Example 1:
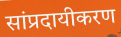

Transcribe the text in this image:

सांप्रदायीकरण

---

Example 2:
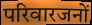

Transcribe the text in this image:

परिवारजनों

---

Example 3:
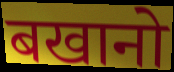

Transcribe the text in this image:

बखानो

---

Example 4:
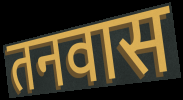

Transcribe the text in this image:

तनवास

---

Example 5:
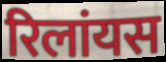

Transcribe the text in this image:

रिलांयस